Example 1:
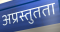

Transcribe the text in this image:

अप्रस्तुतता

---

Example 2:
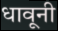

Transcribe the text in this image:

धावूनी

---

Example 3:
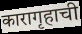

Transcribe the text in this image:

कारागृहाची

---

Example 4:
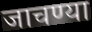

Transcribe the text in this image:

जाचण्या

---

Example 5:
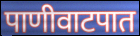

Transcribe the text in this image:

पाणीवाटपात